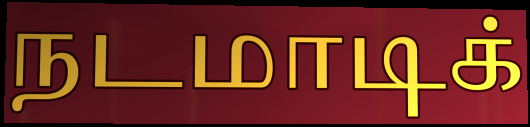
நடமாடிக்